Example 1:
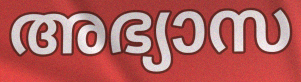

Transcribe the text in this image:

അഭ്യാസ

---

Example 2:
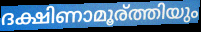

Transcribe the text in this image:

ദക്ഷിണാമൂര്ത്തിയും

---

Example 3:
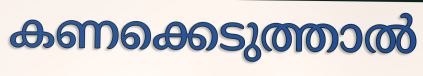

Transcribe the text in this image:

കണക്കെടുത്താൽ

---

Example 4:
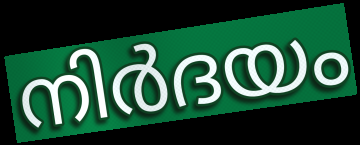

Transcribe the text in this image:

നിർദയം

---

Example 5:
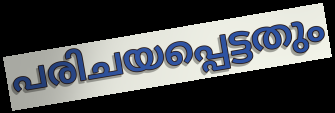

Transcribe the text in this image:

പരിചയപ്പെട്ടതും